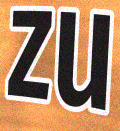
zu